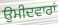
ਉਮੀਦਵਾਰਾਂ